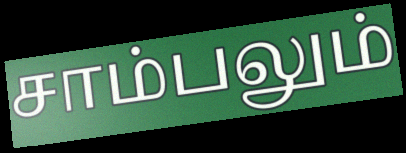
சாம்பலும்